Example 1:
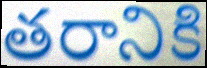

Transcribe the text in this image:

తరానికి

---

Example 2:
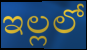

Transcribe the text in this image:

ఇల్లలో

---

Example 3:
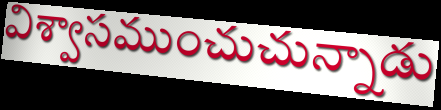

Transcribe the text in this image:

విశ్వాసముంచుచున్నాడు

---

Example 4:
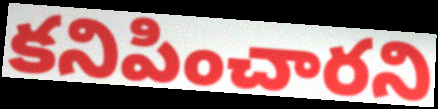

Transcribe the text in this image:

కనిపించారని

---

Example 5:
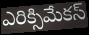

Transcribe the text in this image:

ఎరిక్సిమేకస్